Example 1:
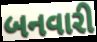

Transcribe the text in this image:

બનવારી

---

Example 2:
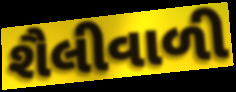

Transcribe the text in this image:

શૈલીવાળી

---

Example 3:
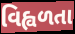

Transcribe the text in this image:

વિહ્વળતા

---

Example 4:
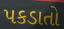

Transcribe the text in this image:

પકડાતો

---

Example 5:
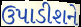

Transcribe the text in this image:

ઉપાડીશને